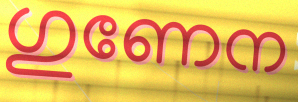
ഗുണേന